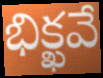
భిక్ఖవే